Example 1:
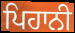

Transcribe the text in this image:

ਪਿਹਾਨੀ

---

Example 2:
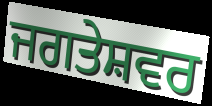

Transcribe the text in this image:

ਜਗਤੇਸ਼ਵਰ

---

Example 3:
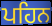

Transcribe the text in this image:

ਪਹਿਨ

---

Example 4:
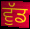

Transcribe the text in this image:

ਵੁੱਡ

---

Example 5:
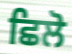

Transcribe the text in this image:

ਛਿਲੋ